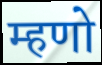
म्हणो